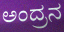
ಅಂದ್ರನ